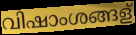
വിഷാംശങ്ങള്